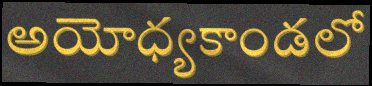
అయోధ్యకాండలో